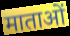
माताओं